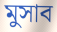
মুসাব